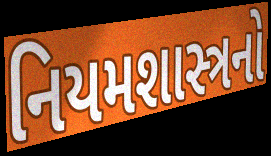
નિયમશાસ્ત્રનો